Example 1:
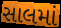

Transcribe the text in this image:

સાલમાં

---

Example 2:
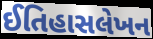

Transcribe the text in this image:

ઈતિહાસલેખન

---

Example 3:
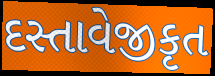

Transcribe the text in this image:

દસ્તાવેજીકૃત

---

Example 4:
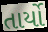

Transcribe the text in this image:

તાર્યો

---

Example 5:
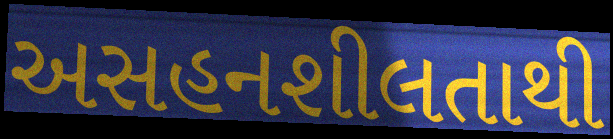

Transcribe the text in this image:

અસહનશીલતાથી